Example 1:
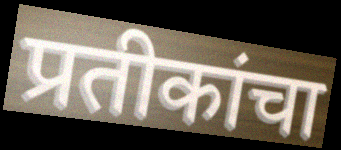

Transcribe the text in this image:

प्रतीकांचा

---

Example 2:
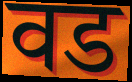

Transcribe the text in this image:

वड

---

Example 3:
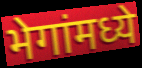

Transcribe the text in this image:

भेगांमध्ये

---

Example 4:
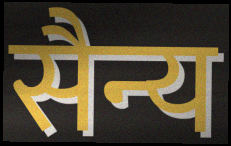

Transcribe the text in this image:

सैन्‍य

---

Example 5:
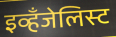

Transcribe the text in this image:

इव्हँजेलिस्ट